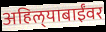
अहिल्याबाईंवर